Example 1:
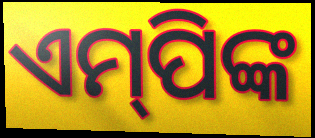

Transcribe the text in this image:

ଏମ୍‌ପିଙ୍କ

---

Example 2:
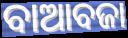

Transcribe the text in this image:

ବାଆବଜା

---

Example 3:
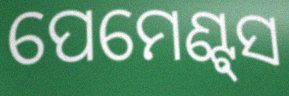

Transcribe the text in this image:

ପେମେଣ୍ଟ୍‌ସ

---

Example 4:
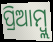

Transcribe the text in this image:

ପ୍ରିଆମ୍ବ୍ଲ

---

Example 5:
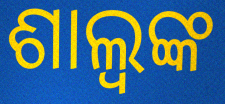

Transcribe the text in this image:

ଶାଲ୍ୱଙ୍କ